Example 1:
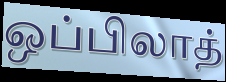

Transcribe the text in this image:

ஒப்பிலாத்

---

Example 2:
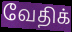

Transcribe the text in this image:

வேதிக்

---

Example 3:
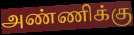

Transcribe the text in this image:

அண்ணிக்கு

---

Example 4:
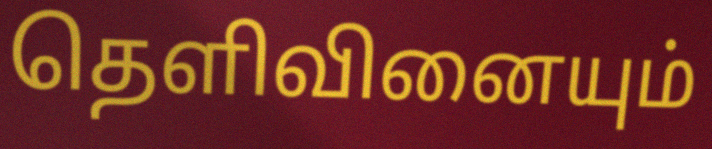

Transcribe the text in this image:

தெளிவினையும்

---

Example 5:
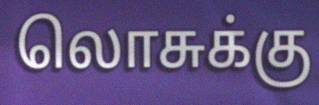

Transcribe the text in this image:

லொசுக்கு